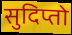
सुदिप्तो